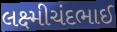
લક્ષ્મીચંદભાઈ